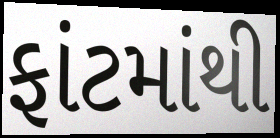
ફાંટમાંથી